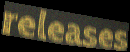
releases